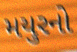
મયુરનો